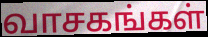
வாசகங்கள்